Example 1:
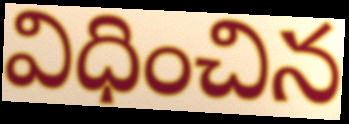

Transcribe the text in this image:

విధించిన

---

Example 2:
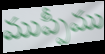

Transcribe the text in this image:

ముప్పీము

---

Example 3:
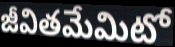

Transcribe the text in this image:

జీవితమేమిటో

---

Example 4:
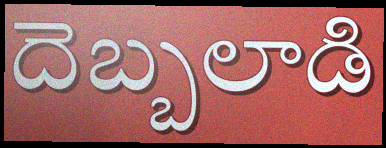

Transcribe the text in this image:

దెబ్బలాడి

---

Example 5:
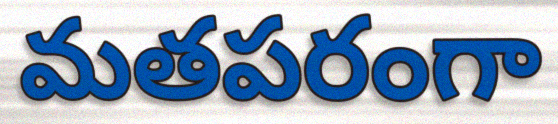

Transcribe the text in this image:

మతపరంగా